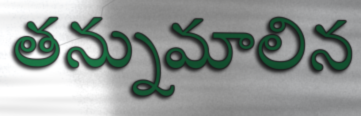
తన్నుమాలిన